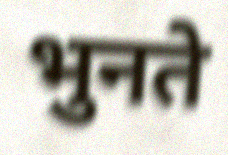
भुनते